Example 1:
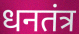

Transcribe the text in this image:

धनतंत्र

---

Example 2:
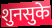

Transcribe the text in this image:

शुनसुके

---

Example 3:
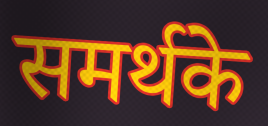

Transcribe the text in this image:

समर्थके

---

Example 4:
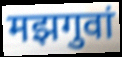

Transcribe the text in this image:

मझगुवां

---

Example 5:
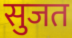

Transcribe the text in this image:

सुजत